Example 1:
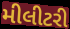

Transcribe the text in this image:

મીલીટરી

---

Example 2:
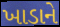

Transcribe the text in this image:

ખાડાને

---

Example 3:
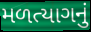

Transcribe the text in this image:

મળત્યાગનું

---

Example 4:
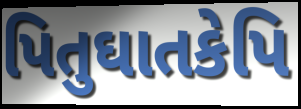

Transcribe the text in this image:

પિતુઘાતકેપિ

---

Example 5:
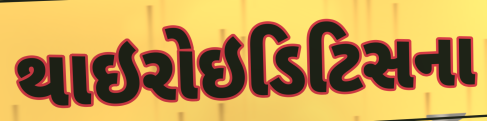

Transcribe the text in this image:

થાઇરોઇડિટિસના